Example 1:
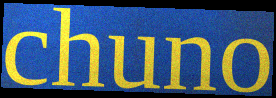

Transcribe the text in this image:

chuno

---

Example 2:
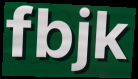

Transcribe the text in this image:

fbjk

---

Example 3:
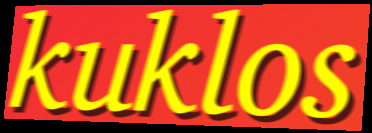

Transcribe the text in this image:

kuklos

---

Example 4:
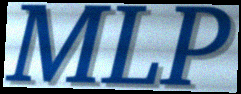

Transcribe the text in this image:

MLP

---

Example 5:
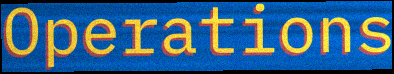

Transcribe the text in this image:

Operations